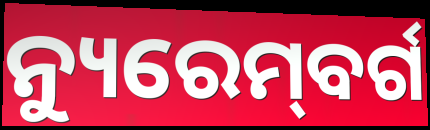
ନ୍ୟୁରେମ୍‌ବର୍ଗ